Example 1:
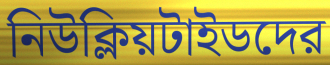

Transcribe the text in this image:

নিউক্লিয়টাইডদের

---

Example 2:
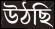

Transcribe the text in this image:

উঠছি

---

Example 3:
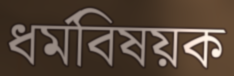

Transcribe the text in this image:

ধর্মবিষয়ক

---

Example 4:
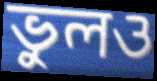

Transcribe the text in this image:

ভুলও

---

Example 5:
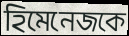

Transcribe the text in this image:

হিমেনেজকে